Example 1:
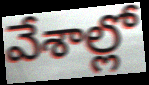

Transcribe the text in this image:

వేశాల్లో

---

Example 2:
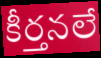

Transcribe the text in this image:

కీర్తనలే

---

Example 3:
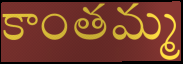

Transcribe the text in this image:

కాంతమ్మ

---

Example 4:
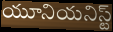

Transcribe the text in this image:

యూనియనిస్ట్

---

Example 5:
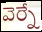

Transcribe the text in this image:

వెర్నే